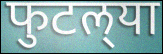
फुटल्या